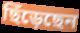
ছিঁড়েছেন